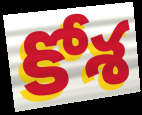
కోశ